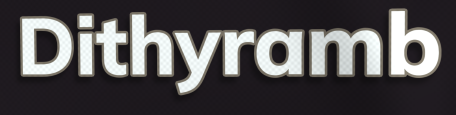
Dithyramb